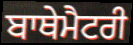
ਬਾਥੇਮੈਟਰੀ